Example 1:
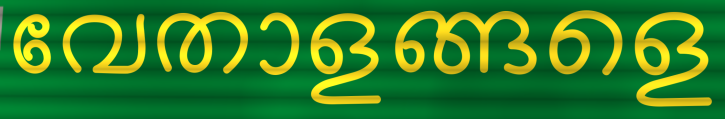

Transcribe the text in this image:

വേതാളങ്ങളെ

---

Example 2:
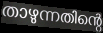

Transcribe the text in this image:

താഴുന്നതിന്റെ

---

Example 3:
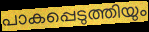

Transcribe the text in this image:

പാകപ്പെടുത്തിയും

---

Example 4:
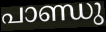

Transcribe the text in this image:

പാണ്ഡു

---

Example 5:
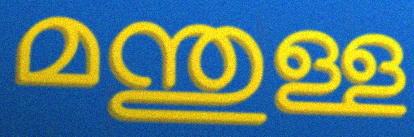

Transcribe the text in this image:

മന്തുള്ള